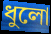
ধুলো